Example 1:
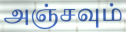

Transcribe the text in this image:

அஞ்சவும்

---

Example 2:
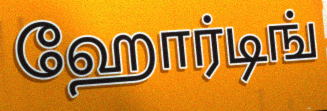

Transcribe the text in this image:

ஹோர்டிங்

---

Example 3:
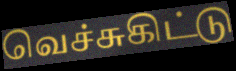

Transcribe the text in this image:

வெச்சுகிட்டு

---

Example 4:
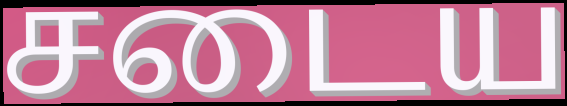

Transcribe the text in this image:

சடைய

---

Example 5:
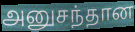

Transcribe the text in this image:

அனுசந்தான